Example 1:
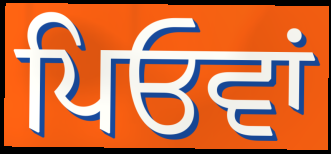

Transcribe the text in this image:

ਪਿਓਵਾਂ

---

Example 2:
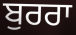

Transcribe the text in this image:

ਬੁਰਰਾ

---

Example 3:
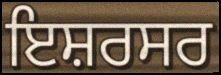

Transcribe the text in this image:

ਇਸ਼ਰਸਰ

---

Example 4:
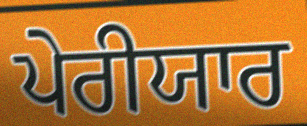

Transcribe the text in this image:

ਪੇਰੀਯਾਰ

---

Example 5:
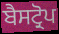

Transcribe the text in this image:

ਬੈਸਟ੍ਰੋਪ